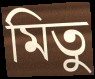
মিতু